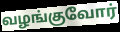
வழங்குவோர்